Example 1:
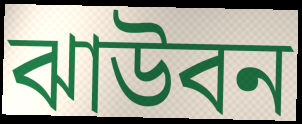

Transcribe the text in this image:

ঝাউবন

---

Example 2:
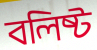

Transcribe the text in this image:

বলিষ্ট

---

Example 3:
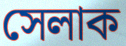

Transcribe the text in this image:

সেলাক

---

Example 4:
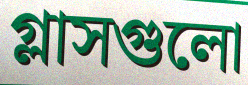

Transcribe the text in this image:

গ্লাসগুলো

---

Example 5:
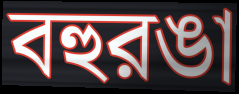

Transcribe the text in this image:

বহুরঙা